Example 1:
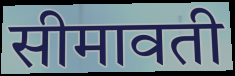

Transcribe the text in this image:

सीमावती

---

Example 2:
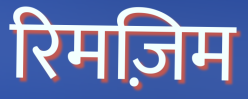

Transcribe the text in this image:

रिमज़िम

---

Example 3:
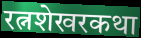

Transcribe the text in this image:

रत्नशेखरकथा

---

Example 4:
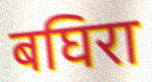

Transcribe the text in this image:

बघिरा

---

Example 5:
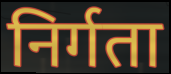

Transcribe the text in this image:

निर्गता